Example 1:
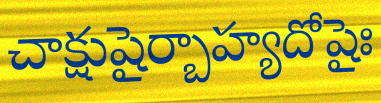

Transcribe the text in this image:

చాక్షుషైర్బాహ్యదోషైః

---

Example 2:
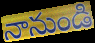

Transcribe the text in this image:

నానుండి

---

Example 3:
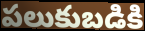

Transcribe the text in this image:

పలుకుబడికి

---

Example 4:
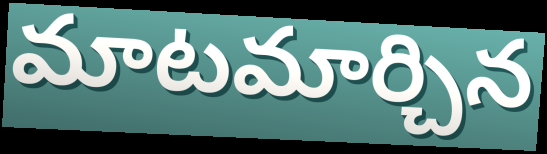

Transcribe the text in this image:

మాటమార్చిన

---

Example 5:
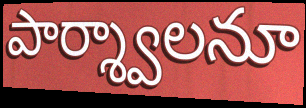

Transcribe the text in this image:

పార్శ్వాలనూ